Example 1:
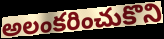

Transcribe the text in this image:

అలంకరించుకొని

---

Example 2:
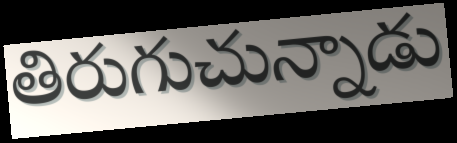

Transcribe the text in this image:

తిరుగుచున్నాడు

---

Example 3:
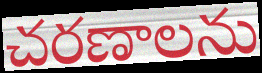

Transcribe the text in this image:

చరణాలను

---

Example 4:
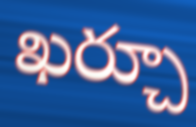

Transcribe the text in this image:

ఖర్చూ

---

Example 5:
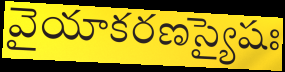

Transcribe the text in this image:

వైయాకరణస్యైషః